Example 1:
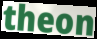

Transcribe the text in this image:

theon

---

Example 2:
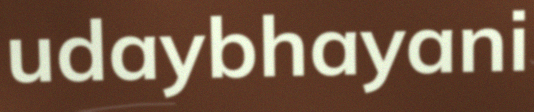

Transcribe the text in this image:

udaybhayani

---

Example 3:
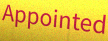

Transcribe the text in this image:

Appointed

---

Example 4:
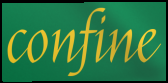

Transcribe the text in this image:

confine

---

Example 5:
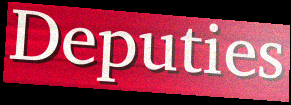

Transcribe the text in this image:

Deputies